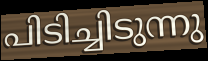
പിടിച്ചിടുന്നു